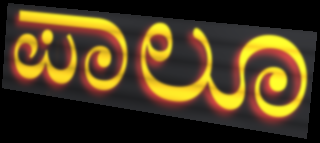
ಪಾಲೂ